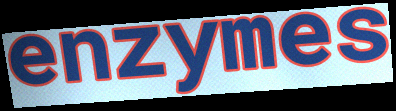
enzymes